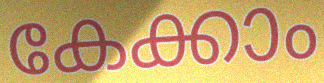
കേക്കാം